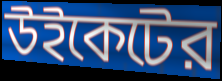
উইকেটের